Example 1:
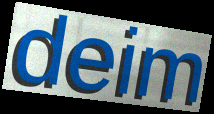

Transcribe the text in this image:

deim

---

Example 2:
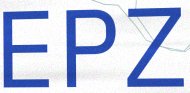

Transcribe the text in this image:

EPZ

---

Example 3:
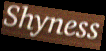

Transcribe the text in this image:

Shyness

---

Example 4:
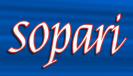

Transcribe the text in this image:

sopari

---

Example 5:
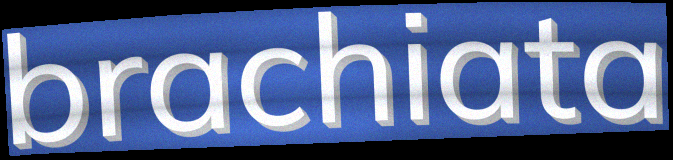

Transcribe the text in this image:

brachiata